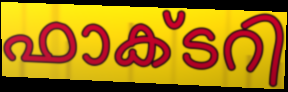
ഫാക്ടറി